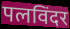
पलविंदर